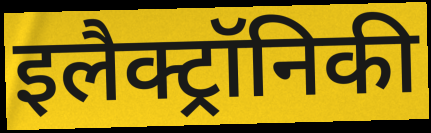
इलैक्ट्रॉनिकी